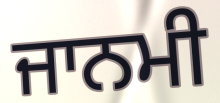
ਜਾਨਮੀ